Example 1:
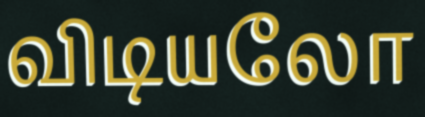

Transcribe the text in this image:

விடியலோ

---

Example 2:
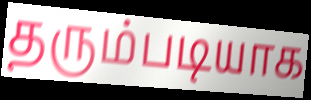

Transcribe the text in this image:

தரும்படியாக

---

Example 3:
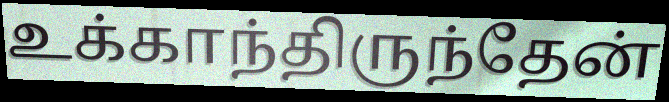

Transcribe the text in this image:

உக்காந்திருந்தேன்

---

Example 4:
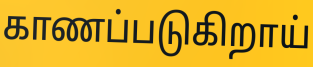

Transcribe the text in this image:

காணப்படுகிறாய்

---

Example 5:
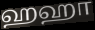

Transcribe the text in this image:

ஹஹா